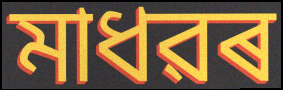
মাধৱৰ